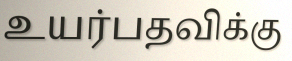
உயர்பதவிக்கு